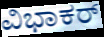
ವಿಭಾಕರ್